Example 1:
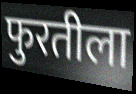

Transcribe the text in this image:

फुरतीला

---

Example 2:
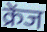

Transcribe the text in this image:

क्रेंज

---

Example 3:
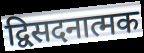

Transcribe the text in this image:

द्विसदनात्मक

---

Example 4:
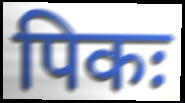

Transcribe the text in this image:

पिकः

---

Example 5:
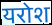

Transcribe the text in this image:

यरोश